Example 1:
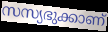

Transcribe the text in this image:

സസ്യഭുക്കാണ്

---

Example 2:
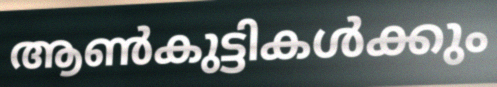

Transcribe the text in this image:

ആൺകുട്ടികൾക്കും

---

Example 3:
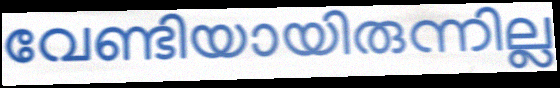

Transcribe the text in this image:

വേണ്ടിയായിരുന്നില്ല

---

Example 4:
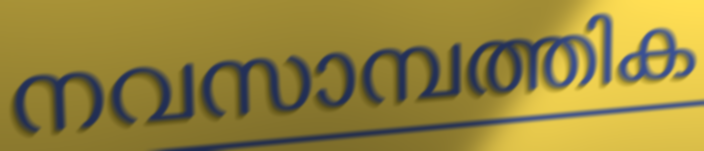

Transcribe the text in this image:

നവസാമ്പത്തിക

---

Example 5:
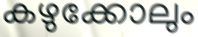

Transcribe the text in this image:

കഴുക്കോലും